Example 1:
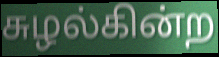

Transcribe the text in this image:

சுழல்கின்ற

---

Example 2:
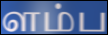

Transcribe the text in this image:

ளம்ப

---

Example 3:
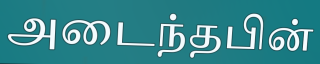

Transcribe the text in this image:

அடைந்தபின்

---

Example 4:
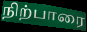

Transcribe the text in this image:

நிற்பாரை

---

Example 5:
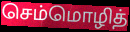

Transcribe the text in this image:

செம்மொழித்